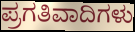
ಪ್ರಗತಿವಾದಿಗಳು